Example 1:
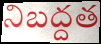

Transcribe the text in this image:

నిబద్దత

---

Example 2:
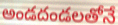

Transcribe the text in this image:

అండదండలతోనే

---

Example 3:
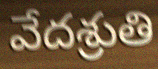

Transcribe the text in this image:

వేదశ్రుతి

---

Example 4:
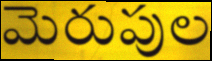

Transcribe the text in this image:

మెరుపుల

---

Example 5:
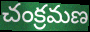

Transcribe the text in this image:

చంక్రమణ